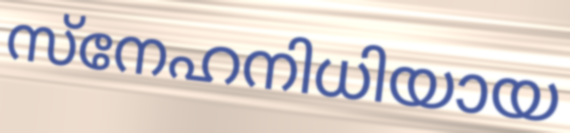
സ്നേഹനിധിയായ